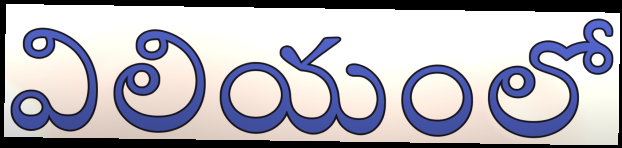
విలియంలో